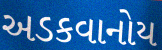
અડકવાનોય